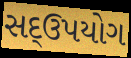
સદ્ઉપયોગ